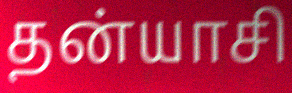
தன்யாசி